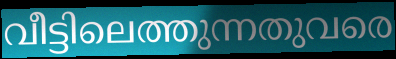
വീട്ടിലെത്തുന്നതുവരെ